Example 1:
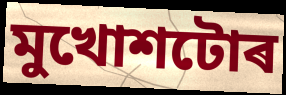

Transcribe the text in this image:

মুখোশটোৰ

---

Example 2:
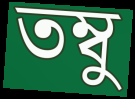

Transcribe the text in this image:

তম্বু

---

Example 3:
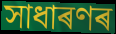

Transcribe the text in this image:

সাধাৰণৰ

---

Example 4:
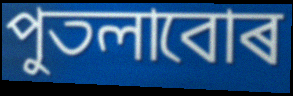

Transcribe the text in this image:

পুতলাবোৰ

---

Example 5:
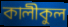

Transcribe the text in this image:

কালীকুল